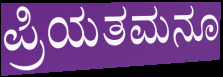
ಪ್ರಿಯತಮನೂ